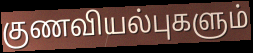
குணவியல்புகளும்